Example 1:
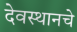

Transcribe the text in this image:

देवस्थानचे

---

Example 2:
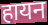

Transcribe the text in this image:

हायन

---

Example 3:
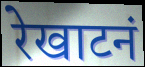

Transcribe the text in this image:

रेखाटनं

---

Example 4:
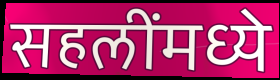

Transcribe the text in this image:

सहलींमध्ये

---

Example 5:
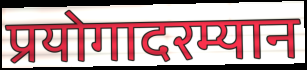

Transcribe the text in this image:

प्रयोगादरम्यान